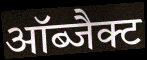
ऑब्जैक्ट